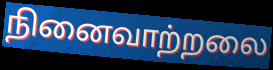
நினைவாற்றலை